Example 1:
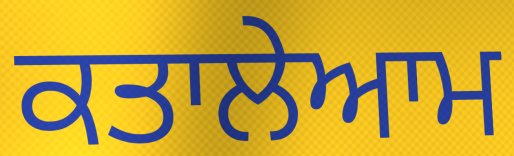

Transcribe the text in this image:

ਕਤਾਲੇਆਮ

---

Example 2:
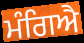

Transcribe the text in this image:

ਮੰਗਿਐ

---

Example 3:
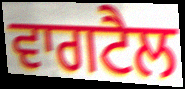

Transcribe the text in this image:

ਵਾਗਟੈਲ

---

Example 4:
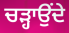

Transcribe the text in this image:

ਚੜ੍ਹਾਉਂਦੇ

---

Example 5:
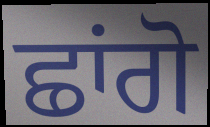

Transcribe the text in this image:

ਛਾਂਗੋ